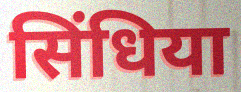
सिंधिया